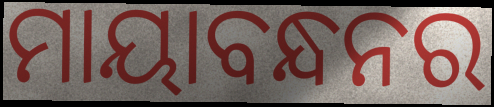
ମାୟାବନ୍ଧନର